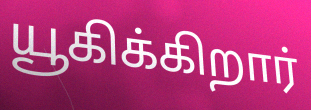
யூகிக்கிறார்